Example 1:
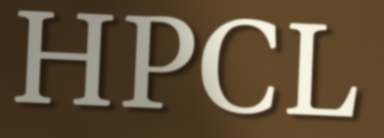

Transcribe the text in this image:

HPCL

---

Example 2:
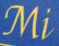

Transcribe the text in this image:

Mi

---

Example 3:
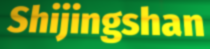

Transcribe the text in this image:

Shijingshan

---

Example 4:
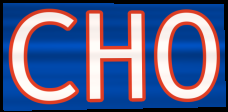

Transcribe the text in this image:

CHO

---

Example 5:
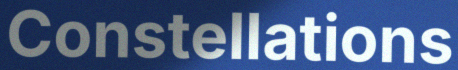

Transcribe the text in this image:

Constellations